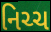
નિચ્ચ